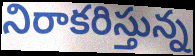
నిరాకరిస్తున్న